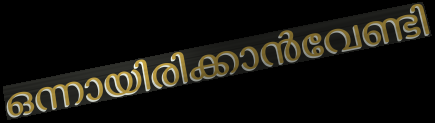
ഒന്നായിരിക്കാൻവേണ്ടി